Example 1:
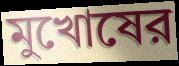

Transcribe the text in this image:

মুখোষের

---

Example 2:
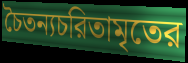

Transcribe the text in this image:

চৈতন্যচরিতামৃতের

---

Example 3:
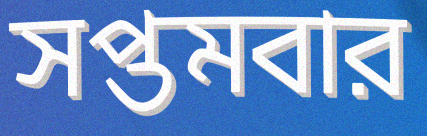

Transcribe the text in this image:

সপ্তমবার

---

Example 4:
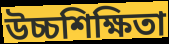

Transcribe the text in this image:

উচ্চশিক্ষিতা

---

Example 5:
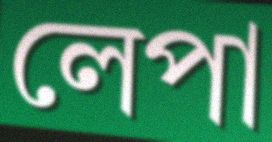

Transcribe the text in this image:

লেপা